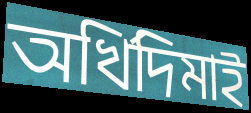
অৰ্খিদিমাই